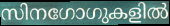
സിനഗോഗുകളിൽ